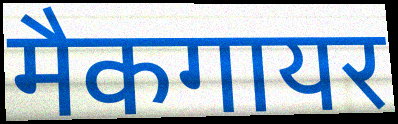
मैकगायर